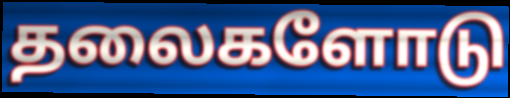
தலைகளோடு